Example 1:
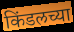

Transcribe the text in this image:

किंडलच्या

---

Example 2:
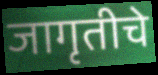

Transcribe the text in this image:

जागृतीचे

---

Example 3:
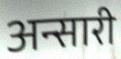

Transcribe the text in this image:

अन्सारी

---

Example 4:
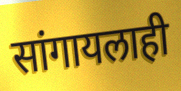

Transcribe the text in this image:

सांगायलाही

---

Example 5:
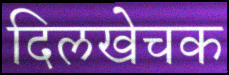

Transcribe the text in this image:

दिलखेचक